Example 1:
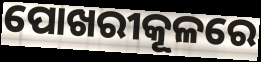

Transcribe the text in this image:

ପୋଖରୀକୂଳରେ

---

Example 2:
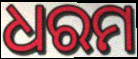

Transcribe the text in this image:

ଧରମ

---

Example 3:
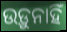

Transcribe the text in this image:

ଉଡ଼ୁନାହିଁ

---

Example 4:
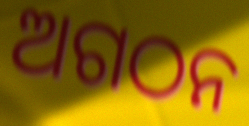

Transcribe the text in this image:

ଅଗଠନ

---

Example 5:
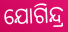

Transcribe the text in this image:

ଯୋଗିନ୍ଦ୍ର